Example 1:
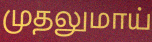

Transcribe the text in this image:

முதலுமாய்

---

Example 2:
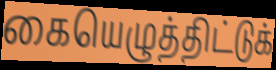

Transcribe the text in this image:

கையெழுத்திட்டுக்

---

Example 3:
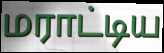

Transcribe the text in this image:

மராட்டிய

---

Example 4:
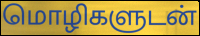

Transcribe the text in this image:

மொழிகளுடன்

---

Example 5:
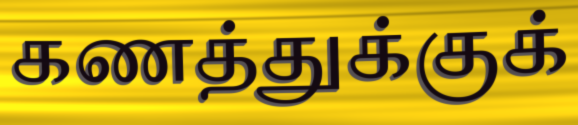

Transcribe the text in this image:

கணத்துக்குக்